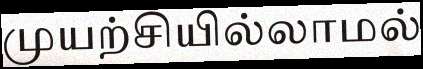
முயற்சியில்லாமல்